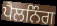
ਪੈਲਨਿੰਗ